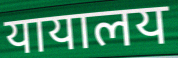
यायालय